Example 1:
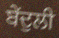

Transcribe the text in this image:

ਬੇਂਦੁਲੀ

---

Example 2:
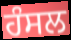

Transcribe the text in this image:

ਹੰਸਲ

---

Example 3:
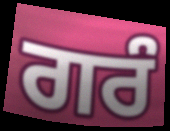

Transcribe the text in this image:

ਗਰੰ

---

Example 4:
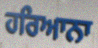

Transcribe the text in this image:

ਹਰਿਆਨਾ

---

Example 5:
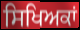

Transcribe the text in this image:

ਸਿਖਿਅਕਾਂ